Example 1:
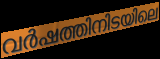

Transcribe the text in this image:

വർഷത്തിനിടയിലെ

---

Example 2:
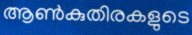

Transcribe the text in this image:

ആൺകുതിരകളുടെ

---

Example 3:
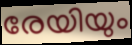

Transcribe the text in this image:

രേയിയും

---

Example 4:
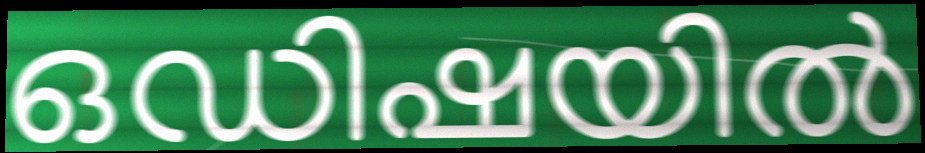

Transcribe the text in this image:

ഒഡിഷയിൽ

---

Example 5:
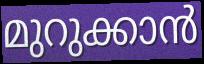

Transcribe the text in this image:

മുറുക്കാൻ